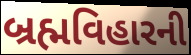
બ્રહ્મવિહારની